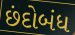
છંદોબંધ